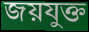
জয়যুক্ত